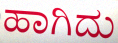
ಹಾಗಿದು